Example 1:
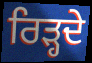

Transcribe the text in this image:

ਰਿੜ੍ਹਦੇ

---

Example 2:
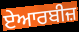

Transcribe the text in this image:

ਏਆਰਬੀਜ਼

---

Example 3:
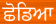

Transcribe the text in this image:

ਛੋਡਿਆ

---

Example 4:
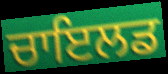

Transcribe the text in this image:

ਚਾਇਲਡ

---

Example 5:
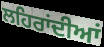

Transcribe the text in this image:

ਲਹਿਰਾਂਦੀਆਂ